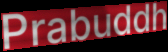
Prabuddh